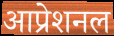
आप्रेशनल